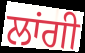
ਲਾਂਗੀ